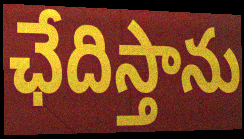
ఛేదిస్తాను